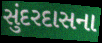
સુંદરદાસના